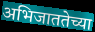
अभिजाततेच्या